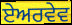
ਏਅਰਵੇਵ